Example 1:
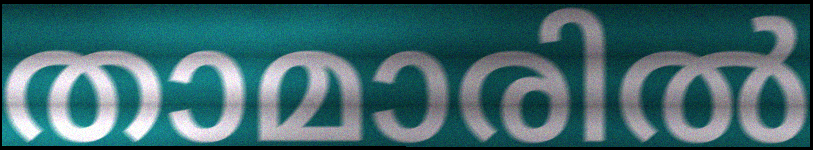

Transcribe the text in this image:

താമാരിൽ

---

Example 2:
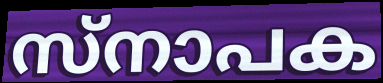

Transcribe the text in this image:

സ്നാപക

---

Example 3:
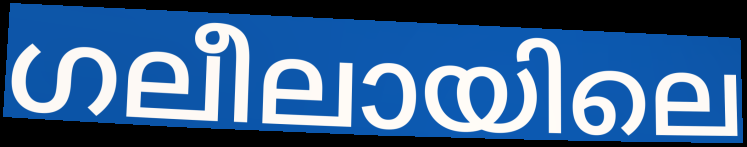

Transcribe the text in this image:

ഗലീലായിലെ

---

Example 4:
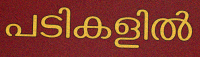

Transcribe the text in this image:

പടികളിൽ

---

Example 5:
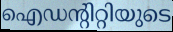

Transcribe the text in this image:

ഐഡന്റിറ്റിയുടെ